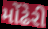
મોંઢેરી